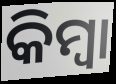
କିମ୍ବା